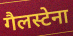
गैलस्टेना